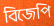
বিজেপি